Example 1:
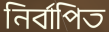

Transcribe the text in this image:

নিৰ্বাপিত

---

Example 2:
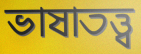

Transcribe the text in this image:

ভাষাতত্ত্ব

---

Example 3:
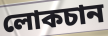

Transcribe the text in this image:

লোকচান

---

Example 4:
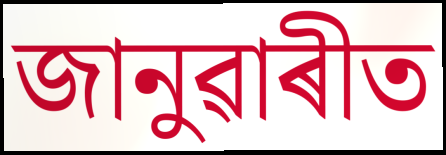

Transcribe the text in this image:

জানুৱাৰীত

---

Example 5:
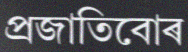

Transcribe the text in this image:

প্ৰজাতিবোৰ